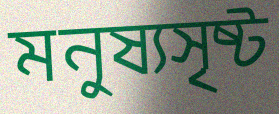
মনুষ্যসৃষ্ট